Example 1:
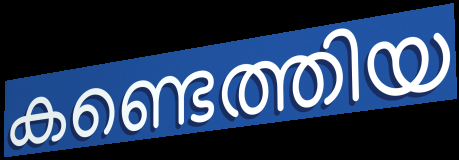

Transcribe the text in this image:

കണ്ടെത്തിയ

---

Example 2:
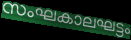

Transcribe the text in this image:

സംഘകാലഘട്ടം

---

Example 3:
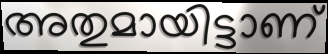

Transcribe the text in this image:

അതുമായിട്ടാണ്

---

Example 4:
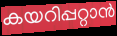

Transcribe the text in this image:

കയറിപ്പറ്റാൻ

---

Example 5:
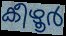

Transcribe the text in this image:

കീഴൂർ